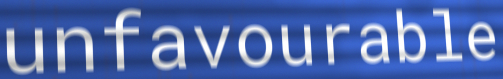
unfavourable